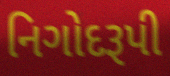
નિગોદરૂપી